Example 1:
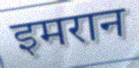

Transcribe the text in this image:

इमरान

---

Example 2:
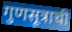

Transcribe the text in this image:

गुणसूत्राची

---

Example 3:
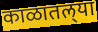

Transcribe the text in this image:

काळातल्या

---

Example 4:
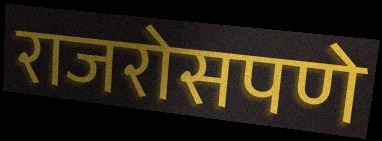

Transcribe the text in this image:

राजरोसपणे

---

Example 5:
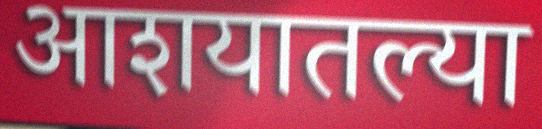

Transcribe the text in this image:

आशयातल्या